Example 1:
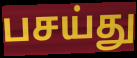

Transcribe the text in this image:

பசய்து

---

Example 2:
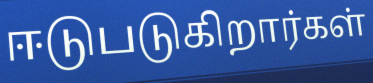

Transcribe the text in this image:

ஈடுபடுகிறார்கள்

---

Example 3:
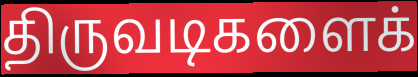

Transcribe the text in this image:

திருவடிகளைக்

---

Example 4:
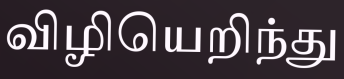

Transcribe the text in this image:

விழியெறிந்து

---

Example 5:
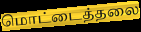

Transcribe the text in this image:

மொட்டைத்தலை